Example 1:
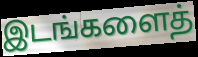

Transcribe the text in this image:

இடங்களைத்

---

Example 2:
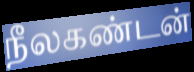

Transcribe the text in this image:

நீலகண்டன்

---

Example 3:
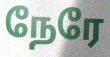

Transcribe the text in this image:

நேரே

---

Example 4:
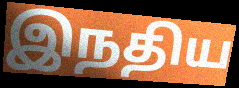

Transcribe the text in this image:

இநதிய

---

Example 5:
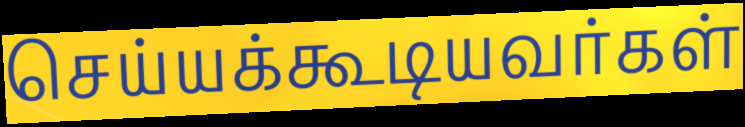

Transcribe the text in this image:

செய்யக்கூடியவர்கள்